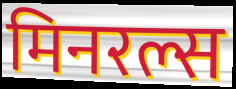
मिनरल्स